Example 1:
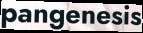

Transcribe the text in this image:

pangenesis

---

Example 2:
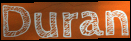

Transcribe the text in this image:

Duran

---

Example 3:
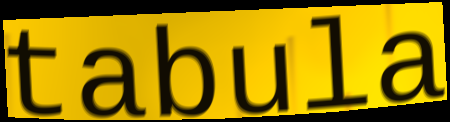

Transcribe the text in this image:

tabula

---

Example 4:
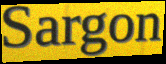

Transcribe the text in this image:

Sargon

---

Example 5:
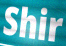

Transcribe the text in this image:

Shir